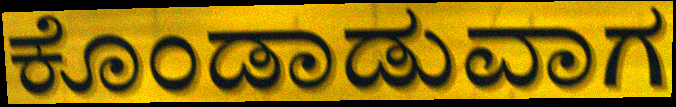
ಕೊಂಡಾಡುವಾಗ